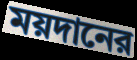
ময়দানের